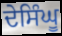
ਦੇਸਿੰਘੂ